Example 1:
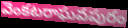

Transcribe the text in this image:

వెంకటరాఘవపురం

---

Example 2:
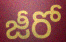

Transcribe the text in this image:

జీరో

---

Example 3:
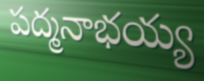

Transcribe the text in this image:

పద్మనాభయ్య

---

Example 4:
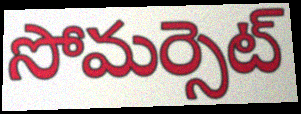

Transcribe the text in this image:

సోమర్సెట్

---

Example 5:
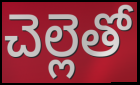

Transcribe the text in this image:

చెల్లెతో